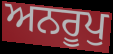
ਅਨਰੂਪੁ